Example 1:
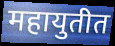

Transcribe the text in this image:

महायुतीत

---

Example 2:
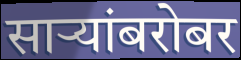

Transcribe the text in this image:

साऱ्यांबरोबर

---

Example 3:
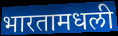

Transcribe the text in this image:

भारतामधली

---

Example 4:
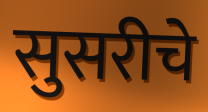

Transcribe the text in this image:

सुसरीचे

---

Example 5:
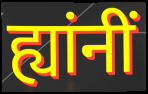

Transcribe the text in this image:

ह्यांनीं